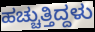
ಹಚ್ಚುತ್ತಿದ್ದಳು